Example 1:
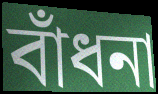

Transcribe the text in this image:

বাঁধনা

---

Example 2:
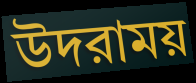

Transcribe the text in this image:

উদরাময়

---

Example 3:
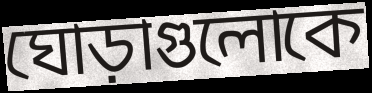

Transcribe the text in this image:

ঘোড়াগুলোকে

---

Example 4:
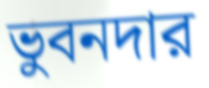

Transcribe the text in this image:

ভুবনদার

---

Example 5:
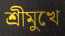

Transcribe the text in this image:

শ্রীমুখে